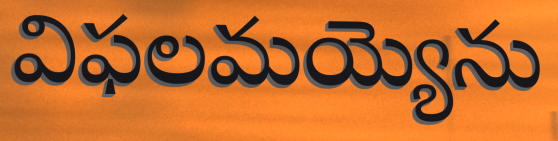
విఫలమయ్యెను